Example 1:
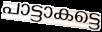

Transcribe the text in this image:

പാട്ടാകട്ടെ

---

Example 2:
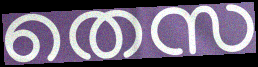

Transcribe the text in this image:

തെസ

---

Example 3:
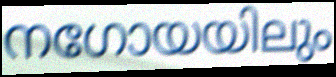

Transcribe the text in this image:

നഗോയയിലും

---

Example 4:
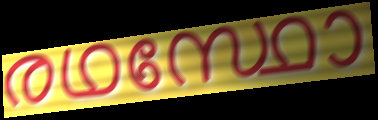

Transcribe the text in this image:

രഥസ്ഥോ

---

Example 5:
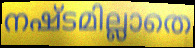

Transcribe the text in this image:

നഷ്ടമില്ലാതെ